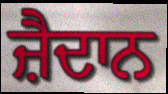
ਜ਼ੈਦਾਨ